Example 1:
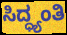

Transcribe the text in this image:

ಸಿದ್ಧ್ಯಂತಿ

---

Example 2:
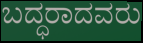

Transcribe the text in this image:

ಬದ್ಧರಾದವರು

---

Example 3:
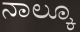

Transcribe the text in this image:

ನಾಲ್ಕೂ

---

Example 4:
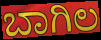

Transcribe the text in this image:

ಬಾಗಿಲ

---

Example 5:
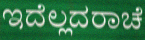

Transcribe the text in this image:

ಇದೆಲ್ಲದರಾಚೆ